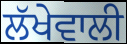
ਲੱਖੇਵਾਲੀ